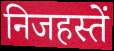
निजहस्तें